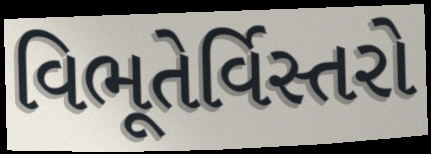
વિભૂતેર્વિસ્તરો